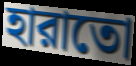
হারাতো